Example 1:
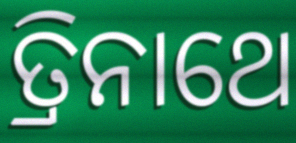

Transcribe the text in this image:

ତ୍ରିନାଥେ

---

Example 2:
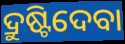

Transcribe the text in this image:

ଦ୍ରୁଷ୍ଟିଦେବା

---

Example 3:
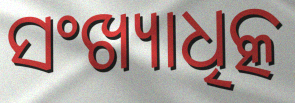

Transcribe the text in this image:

ସଂଖ୍ୟାଧିତ୍କ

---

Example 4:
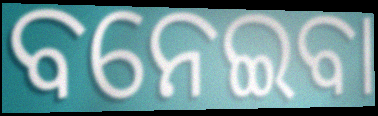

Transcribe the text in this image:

ବନେଇବା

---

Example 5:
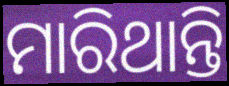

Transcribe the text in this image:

ମାରିଥାନ୍ତି